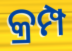
କ୍ରମ୍ପ